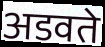
अडवते